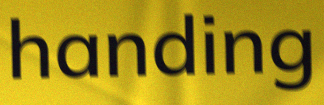
handing